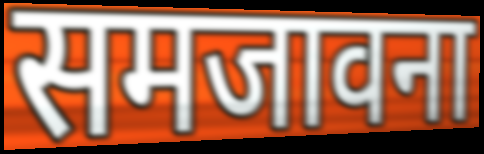
समजावना